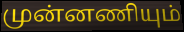
முன்னணியும்